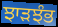
ਝਾੜਝੰਭ